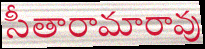
సీతారామారావు